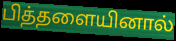
பித்தளையினால்